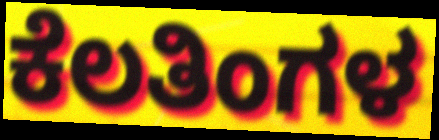
ಕೆಲತಿಂಗಳ